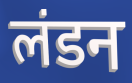
लंडन